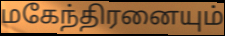
மகேந்திரனையும்